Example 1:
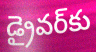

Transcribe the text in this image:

డ్రైవర్‌కు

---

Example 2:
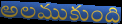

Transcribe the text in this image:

అలముకుంది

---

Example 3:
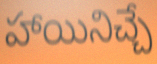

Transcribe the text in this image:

హాయినిచ్చే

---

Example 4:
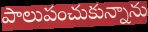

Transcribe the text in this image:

పాలుపంచుకున్నాను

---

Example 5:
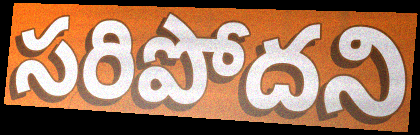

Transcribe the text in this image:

సరిపోదని